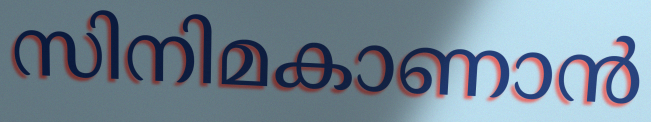
സിനിമകാണാൻ